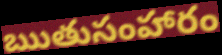
ఋతుసంహారం